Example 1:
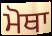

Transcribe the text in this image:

ਮੋਥਾ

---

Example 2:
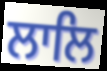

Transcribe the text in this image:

ਲਾਲਿ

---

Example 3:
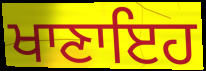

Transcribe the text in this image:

ਖਾਣਾਇਹ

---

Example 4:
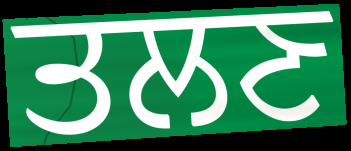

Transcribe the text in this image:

ਤਲਣ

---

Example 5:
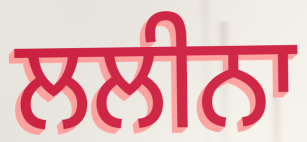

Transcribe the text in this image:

ਲਲੀਨਾ